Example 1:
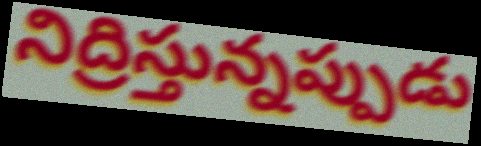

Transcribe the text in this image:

నిద్రిస్తున్నప్పుడు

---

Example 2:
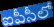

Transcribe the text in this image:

ఐపీసీలో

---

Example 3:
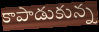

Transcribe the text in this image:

కాపాడుకున్న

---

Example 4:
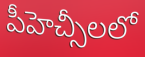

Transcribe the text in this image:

పీహెచ్సీలలో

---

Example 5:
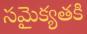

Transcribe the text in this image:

సమైక్యతకి